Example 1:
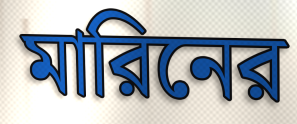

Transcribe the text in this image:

মারিনের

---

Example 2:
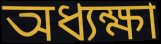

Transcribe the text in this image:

অধ্যক্ষা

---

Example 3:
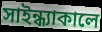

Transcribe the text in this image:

সাইন্ধ্যাকালে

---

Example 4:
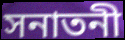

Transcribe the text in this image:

সনাতনী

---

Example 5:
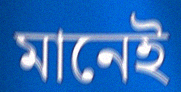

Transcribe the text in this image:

মানেই